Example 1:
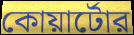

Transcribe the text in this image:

কোয়ার্টোর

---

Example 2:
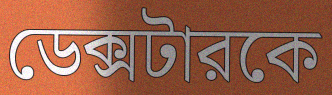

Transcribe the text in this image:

ডেক্সটারকে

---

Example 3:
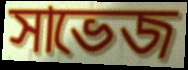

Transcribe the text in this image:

সাভেজ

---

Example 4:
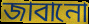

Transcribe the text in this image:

জাবানো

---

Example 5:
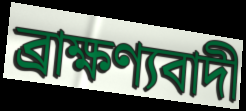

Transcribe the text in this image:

ব্রাক্ষণ্যবাদী